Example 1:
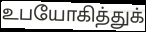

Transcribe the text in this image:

உபயோகித்துக்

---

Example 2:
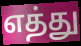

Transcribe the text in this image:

எத்து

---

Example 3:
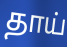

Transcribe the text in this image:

தாய்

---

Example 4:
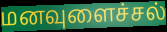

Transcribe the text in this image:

மனவுளைச்சல்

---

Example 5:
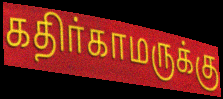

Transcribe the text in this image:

கதிர்காமருக்கு